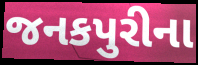
જનકપુરીના